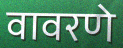
वावरणे